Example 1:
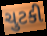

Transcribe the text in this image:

ચુટકી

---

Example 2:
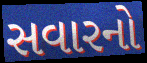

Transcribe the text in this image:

સવારનો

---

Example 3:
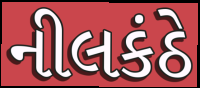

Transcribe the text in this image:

નીલકંઠે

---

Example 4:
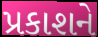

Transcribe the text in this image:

પ્રકાશને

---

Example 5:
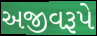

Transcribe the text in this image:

અજીવરૂપે